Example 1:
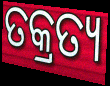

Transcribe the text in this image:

ତକ୍ରତ୍ୟ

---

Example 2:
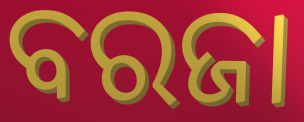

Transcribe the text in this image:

ବରଜା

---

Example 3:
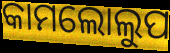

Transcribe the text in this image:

କାମଲୋଲୁପ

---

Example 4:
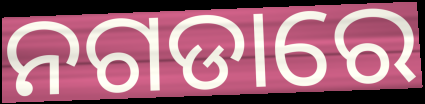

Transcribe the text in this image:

ନଗଡାରେ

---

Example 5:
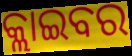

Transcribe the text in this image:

କ୍ଲାଇବର